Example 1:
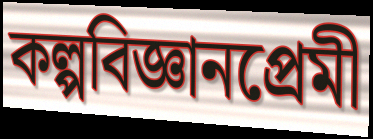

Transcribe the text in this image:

কল্পবিজ্ঞানপ্রেমী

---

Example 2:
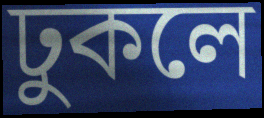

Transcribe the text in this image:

ঢুকলে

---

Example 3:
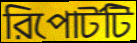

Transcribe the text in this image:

রিপোর্টটি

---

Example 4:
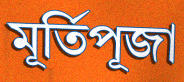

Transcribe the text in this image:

মূর্তিপূজা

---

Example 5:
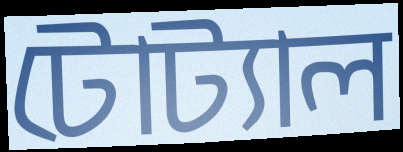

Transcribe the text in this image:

টোট্যাল